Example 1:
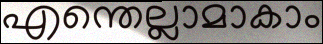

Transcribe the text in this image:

എന്തെല്ലാമാകാം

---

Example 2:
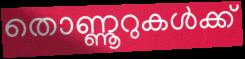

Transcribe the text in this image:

തൊണ്ണൂറുകൾക്ക്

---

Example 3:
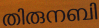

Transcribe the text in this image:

തിരുനബി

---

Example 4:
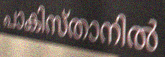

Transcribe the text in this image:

പാകിസ്താനിൽ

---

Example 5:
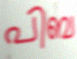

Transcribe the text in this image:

പിബ